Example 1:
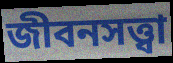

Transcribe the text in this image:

জীবনসত্ত্বা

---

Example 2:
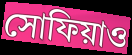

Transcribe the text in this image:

সোফিয়াও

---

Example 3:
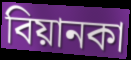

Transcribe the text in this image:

বিয়ানকা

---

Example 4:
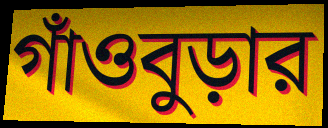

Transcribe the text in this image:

গাঁওবুড়ার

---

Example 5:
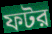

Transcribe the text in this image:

ফটর